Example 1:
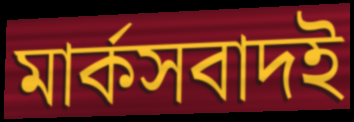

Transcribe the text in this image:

মার্কসবাদই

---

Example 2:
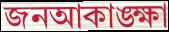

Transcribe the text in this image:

জনআকাঙ্ক্ষা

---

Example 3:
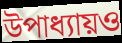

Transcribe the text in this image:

উপাধ্যায়ও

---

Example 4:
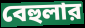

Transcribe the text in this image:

বেহুলার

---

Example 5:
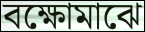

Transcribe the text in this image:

বক্ষোমাঝে